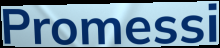
Promessi